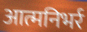
आत्मनिभर्र